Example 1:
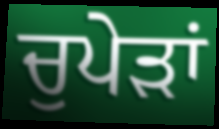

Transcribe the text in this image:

ਚੁਪੇੜਾਂ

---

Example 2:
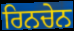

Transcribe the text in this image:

ਰਿਨਚੇਨ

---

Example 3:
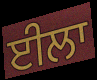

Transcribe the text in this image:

ਈਲਾ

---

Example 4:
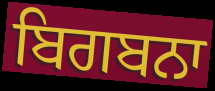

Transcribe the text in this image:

ਬਿਗਬਨਾ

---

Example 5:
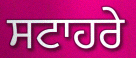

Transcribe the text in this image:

ਸਟਾਹਰੇ